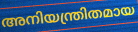
അനിയന്ത്രിതമായ